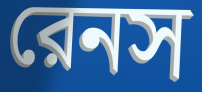
রেনস